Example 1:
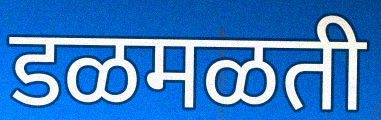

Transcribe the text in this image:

डळमळती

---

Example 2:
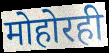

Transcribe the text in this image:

मोहोरही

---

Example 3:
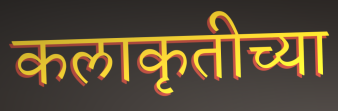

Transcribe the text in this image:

कलाकृतीच्या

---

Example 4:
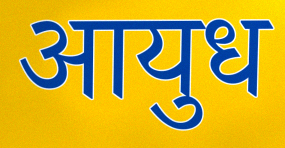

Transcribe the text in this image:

आयुध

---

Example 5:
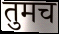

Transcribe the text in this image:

तुमच